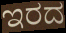
ಇರದ